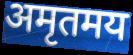
अमृतमय